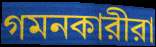
গমনকারীরা